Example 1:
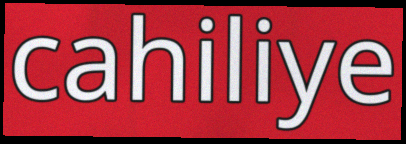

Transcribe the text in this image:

cahiliye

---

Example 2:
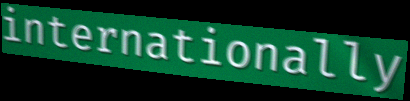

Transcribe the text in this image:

internationally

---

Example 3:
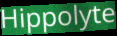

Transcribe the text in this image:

Hippolyte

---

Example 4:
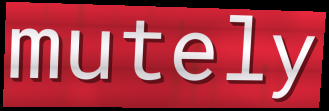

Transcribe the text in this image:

mutely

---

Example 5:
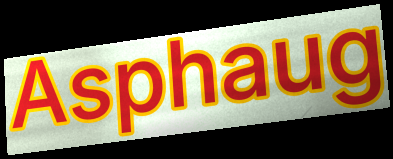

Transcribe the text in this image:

Asphaug